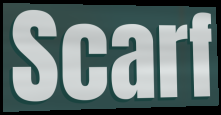
Scarf